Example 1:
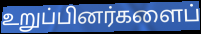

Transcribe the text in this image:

உறுப்பினர்களைப்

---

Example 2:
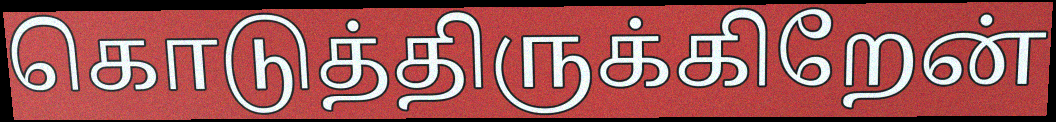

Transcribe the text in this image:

கொடுத்திருக்கிறேன்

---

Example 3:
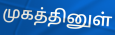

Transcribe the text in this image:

முகத்தினுள்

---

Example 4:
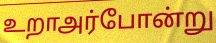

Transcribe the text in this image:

உறாஅர்போன்று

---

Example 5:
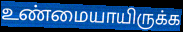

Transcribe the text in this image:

உண்மையாயிருக்க